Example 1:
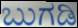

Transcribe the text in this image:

ಬುಗಡಿ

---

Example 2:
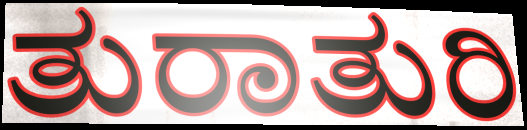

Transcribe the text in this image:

ತುರಾತುರಿ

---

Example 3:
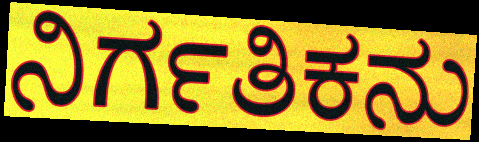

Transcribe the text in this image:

ನಿರ್ಗತಿಕನು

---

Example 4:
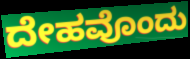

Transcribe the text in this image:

ದೇಹವೊಂದು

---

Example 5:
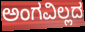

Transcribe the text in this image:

ಅಂಗವಿಲ್ಲದ